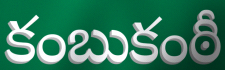
కంబుకంఠీ